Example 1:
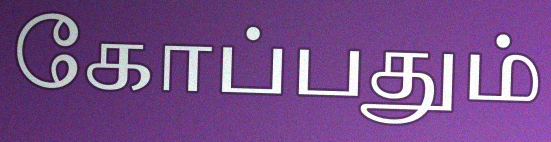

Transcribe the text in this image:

கோப்பதும்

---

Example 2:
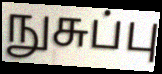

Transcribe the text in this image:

நுசுப்பு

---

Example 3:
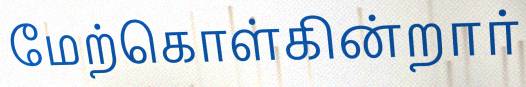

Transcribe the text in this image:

மேற்கொள்கின்றார்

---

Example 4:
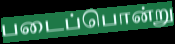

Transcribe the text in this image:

படைப்பொன்று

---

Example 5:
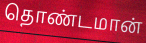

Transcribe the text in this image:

தொண்டமான்